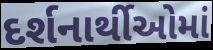
દર્શનાર્થીઓમાં